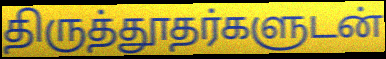
திருத்தூதர்களுடன்